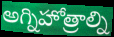
అగ్నిహోత్రాల్ని